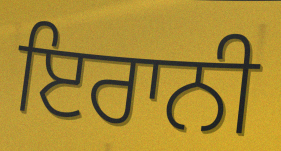
ਇਰਾਨੀ